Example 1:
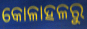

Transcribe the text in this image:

କୋଳାହଳରୁ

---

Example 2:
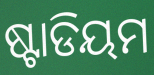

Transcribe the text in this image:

ଷ୍ଟାଡିୟମ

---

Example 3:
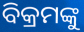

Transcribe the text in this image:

ବିକ୍ରମଙ୍କୁ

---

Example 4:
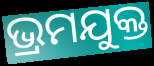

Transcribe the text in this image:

ଭ୍ରମଯୁକ୍ତ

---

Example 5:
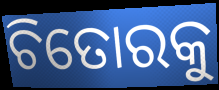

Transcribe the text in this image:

ଚିତୋରକୁ